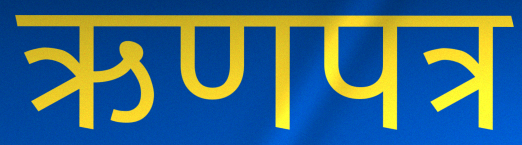
ऋणपत्र